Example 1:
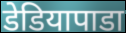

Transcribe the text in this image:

डेडियापाडा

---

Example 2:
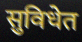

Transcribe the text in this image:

सुविधेत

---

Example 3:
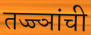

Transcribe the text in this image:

तज्ज्ञांची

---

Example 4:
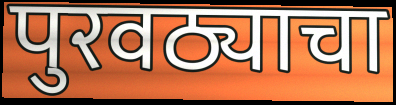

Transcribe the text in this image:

पुरवठ्याचा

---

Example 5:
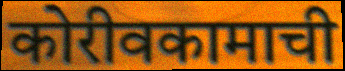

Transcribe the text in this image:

कोरीवकामाची